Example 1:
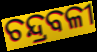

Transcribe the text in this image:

ଚନ୍ଦ୍ରବଳୀ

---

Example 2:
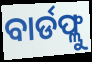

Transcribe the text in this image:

ବାର୍ଡଫ୍ଲୁ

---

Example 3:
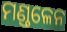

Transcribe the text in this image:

ମଣ୍ଡଳେନ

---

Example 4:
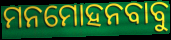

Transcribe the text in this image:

ମନମୋହନବାବୁ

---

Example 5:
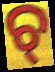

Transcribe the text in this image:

ଚ୍